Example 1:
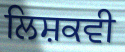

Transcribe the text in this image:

ਲਿਸ਼ਕਵੀ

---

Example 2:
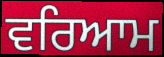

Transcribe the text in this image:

ਵਰਿਆਮ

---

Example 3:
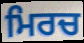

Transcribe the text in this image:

ਮਿਰਚ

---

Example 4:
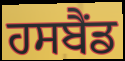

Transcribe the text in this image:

ਹਸਬੈਂਡ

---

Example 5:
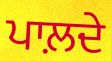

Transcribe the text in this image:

ਪਾਲ਼ਦੇ